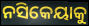
ନସିକେୟାକୁ